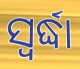
ସ୍ଵର୍ଦ୍ଧା